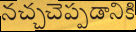
నచ్చచెప్పడానికి